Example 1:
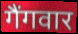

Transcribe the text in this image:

गैंगवार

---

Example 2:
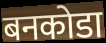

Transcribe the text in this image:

बनकोडा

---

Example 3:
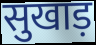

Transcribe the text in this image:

सुखाड़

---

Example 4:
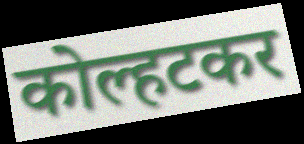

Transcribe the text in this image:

कोल्हटकर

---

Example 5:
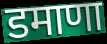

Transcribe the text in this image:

डमाणा